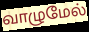
வாழுமேல்